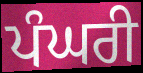
ਪੰਘਰੀ